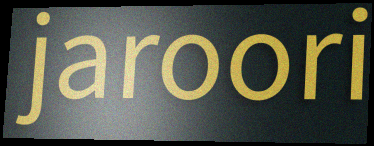
jaroori